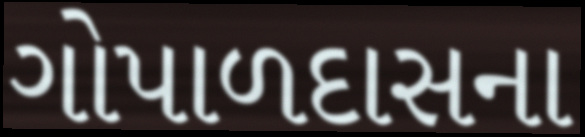
ગોપાળદાસના